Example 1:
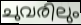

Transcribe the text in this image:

ചുവരിലും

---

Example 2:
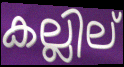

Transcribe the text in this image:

കല്ലില്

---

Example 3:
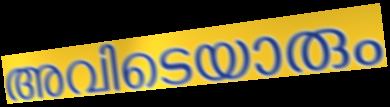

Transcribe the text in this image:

അവിടെയാരും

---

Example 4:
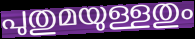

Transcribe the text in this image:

പുതുമയുള്ളതും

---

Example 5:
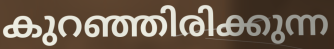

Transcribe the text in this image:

കുറഞ്ഞിരിക്കുന്ന